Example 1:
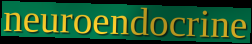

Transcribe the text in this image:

neuroendocrine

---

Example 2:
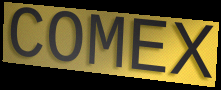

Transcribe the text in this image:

COMEX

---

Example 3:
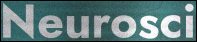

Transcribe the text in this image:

Neurosci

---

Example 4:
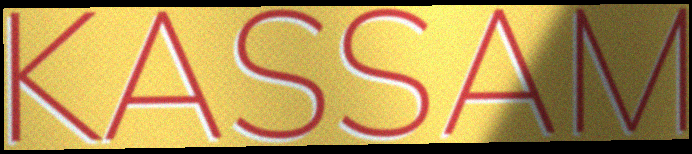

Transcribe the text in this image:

KASSAM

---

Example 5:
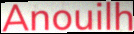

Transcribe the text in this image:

Anouilh